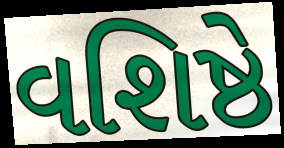
વશિષ્ઠે